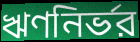
ঋণনির্ভর